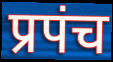
प्रपंच